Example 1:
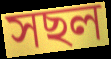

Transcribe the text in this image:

সছল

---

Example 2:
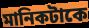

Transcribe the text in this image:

মানিকটাকে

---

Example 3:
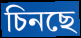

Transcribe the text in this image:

চিনছে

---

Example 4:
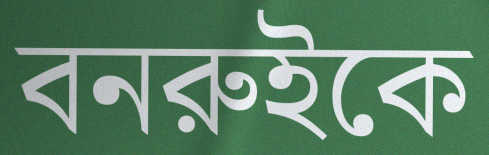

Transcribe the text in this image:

বনরুইকে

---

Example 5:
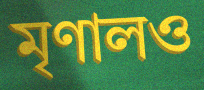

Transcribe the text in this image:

মৃণালও